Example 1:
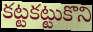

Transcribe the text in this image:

కట్టకట్టుకొని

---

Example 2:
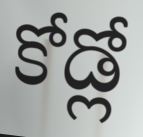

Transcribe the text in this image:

కోడ్లో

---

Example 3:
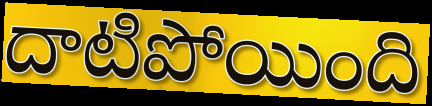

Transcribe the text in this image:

దాటిపోయింది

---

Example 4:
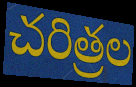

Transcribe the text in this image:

చరిత్రల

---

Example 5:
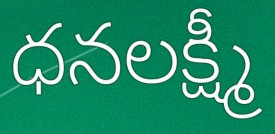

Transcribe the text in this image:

ధనలక్ష్మీ